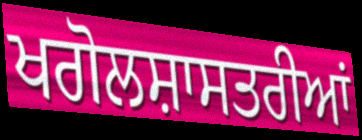
ਖਗੋਲਸ਼ਾਸਤਰੀਆਂ